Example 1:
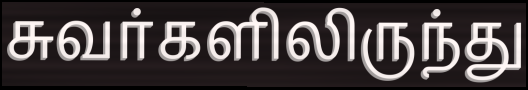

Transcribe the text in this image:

சுவர்களிலிருந்து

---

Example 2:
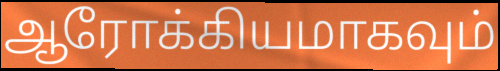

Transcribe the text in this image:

ஆரோக்கியமாகவும்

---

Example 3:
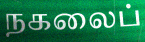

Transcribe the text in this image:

நகலைப்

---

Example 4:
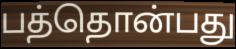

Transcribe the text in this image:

பத்தொன்பது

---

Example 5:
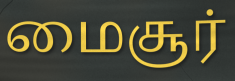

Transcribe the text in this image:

மைசூர்